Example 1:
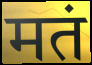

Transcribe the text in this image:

मतं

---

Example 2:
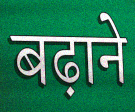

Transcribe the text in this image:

बढ़ाने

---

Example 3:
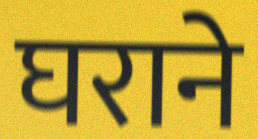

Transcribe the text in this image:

घराने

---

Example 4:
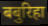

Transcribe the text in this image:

बबुरिहा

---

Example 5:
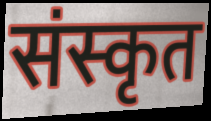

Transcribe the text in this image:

संस्कृत